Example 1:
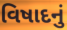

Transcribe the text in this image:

વિષાદનું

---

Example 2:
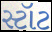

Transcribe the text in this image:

સ્ટૉટ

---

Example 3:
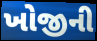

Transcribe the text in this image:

ખોજીની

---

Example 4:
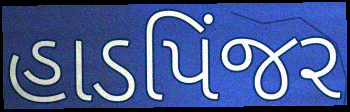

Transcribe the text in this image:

હાડપિંજર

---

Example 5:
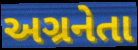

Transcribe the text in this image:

અગ્રનેતા